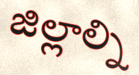
జిల్లాల్ని